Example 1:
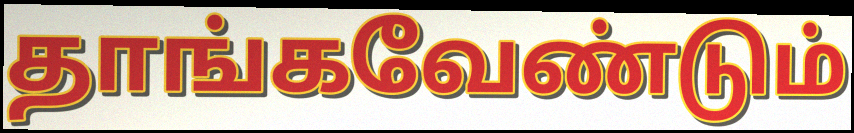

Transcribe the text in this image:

தாங்கவேண்டும்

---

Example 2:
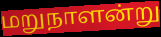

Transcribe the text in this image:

மறுநாளன்று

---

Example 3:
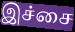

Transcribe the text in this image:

இச்சை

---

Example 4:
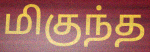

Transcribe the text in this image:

மிகுந்த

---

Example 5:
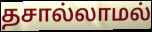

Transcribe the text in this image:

தசால்லாமல்